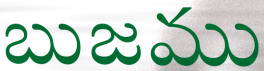
బుజము